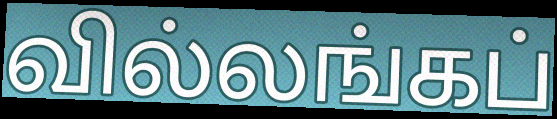
வில்லங்கப்